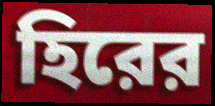
হিরের